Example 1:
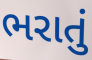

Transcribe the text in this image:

ભરાતું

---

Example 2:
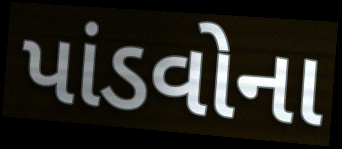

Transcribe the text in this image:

પાંડવોના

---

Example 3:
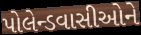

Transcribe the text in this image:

પોલેન્ડવાસીઓને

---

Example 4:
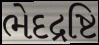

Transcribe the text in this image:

ભેદદ્રષ્ટિ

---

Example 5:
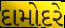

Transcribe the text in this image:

દામોદરે